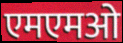
एमएमओ